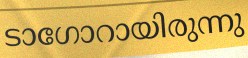
ടാഗോറായിരുന്നു